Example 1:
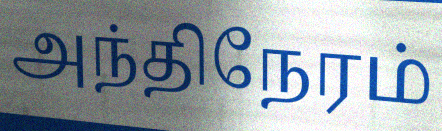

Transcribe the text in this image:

அந்திநேரம்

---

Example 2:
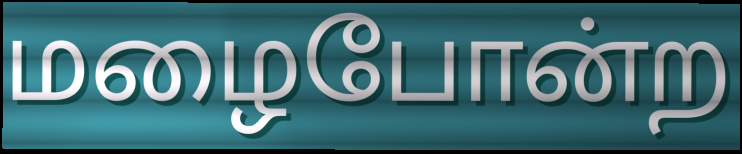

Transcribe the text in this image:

மழைபோன்ற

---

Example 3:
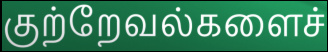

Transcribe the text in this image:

குற்றேவல்களைச்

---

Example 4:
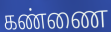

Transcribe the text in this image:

கண்ணை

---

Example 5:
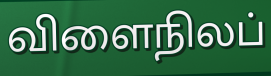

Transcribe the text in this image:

விளைநிலப்